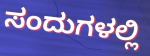
ಸಂದುಗಳಲ್ಲಿ